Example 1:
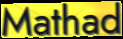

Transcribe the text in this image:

Mathad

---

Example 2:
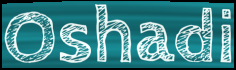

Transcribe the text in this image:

Oshadi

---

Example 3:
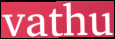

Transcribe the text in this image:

vathu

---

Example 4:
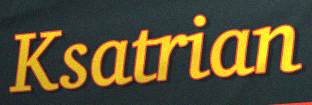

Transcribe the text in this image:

Ksatrian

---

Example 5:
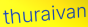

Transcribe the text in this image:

thuraivan